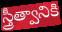
స్త్రీత్వానికి